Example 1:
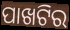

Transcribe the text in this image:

ପାଖଟିର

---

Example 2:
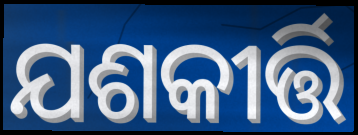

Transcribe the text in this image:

ଯଶକୀର୍ତ୍ତି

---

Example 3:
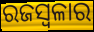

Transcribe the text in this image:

ରଜସ୍ୱଳାର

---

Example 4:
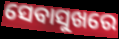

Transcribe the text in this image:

ସେବାସୁଖରେ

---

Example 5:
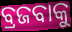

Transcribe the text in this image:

ବ୍ରଜବାକୁ